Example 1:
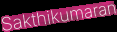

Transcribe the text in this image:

Sakthikumaran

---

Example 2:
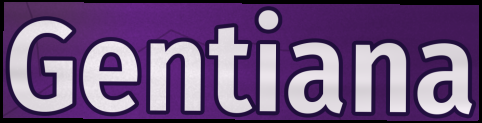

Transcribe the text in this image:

Gentiana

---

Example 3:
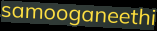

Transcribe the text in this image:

samooganeethi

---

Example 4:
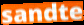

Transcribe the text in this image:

sandte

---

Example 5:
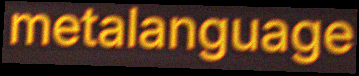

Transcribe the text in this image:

metalanguage